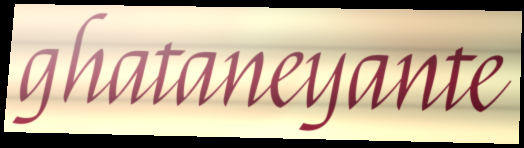
ghataneyante